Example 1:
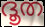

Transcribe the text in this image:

ദൂത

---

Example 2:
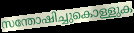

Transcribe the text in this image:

സന്തോഷിച്ചുകൊള്ളുക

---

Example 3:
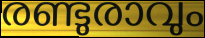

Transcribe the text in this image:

രണ്ടുരാവും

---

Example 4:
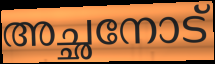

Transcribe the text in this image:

അച്ഛനോട്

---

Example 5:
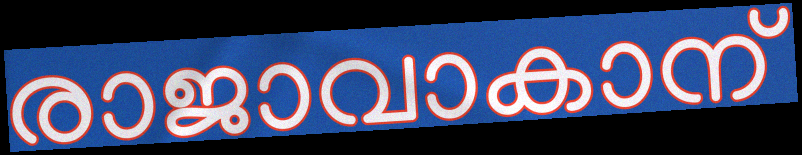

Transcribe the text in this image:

രാജാവാകാന്